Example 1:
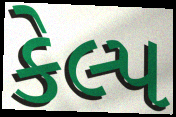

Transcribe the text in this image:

કેલ્પ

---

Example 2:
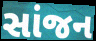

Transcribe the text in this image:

સાંજન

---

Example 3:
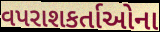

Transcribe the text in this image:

વપરાશકર્તાઓના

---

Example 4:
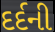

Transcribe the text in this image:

દર્દની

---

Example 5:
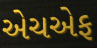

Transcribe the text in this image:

એચએફ